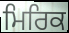
ਮਿਰਿਕ